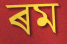
ৰম